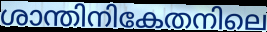
ശാന്തിനികേതനിലെ